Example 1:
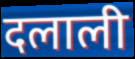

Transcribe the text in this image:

दलाली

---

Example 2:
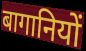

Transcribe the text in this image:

बागानियों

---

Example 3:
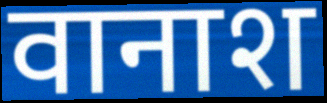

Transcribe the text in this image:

वानाश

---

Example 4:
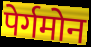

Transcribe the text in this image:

पेर्गमोन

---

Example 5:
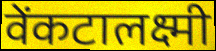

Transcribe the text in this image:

वेंकटालक्ष्मी